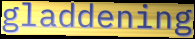
gladdening